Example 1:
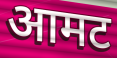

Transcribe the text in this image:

आमट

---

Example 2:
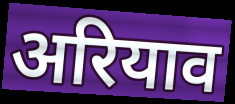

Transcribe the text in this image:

अरियाव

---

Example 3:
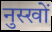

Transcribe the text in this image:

नुस्खों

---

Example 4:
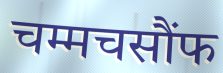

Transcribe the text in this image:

चम्मचसौंफ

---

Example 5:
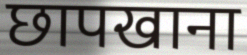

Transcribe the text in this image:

छापखाना